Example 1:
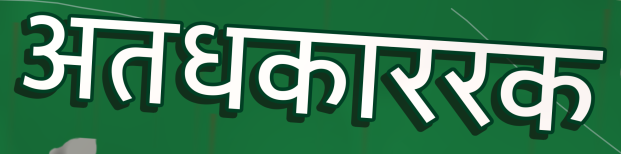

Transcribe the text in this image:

अतधकाररक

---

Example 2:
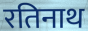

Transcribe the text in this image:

रतिनाथ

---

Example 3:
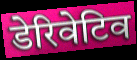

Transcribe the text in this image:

डेरिवेटिव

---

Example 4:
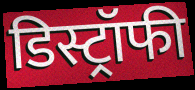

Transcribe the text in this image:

डिस्ट्रॉफी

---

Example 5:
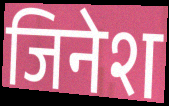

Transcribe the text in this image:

जिनेश